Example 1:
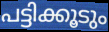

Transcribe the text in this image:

പട്ടിക്കൂടും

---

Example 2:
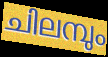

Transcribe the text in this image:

ചിലമ്പും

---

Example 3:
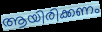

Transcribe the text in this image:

ആയിരിക്കണം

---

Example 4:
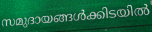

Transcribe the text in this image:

സമുദായങ്ങൾക്കിടയിൽ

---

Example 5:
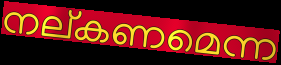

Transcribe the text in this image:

നല്കണമെന്ന